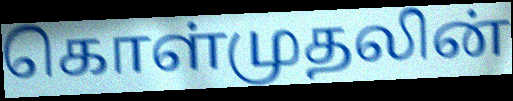
கொள்முதலின்